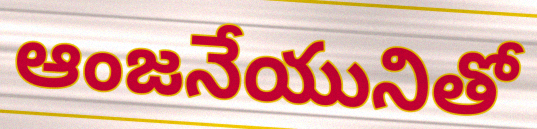
ఆంజనేయునితో